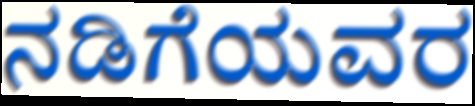
ನಡಿಗೆಯವರ